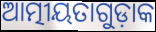
ଆତ୍ମୀୟତାଗୁଡ଼ାକ